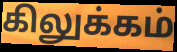
கிலுக்கம்